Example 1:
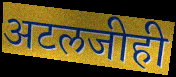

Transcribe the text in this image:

अटलजीही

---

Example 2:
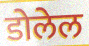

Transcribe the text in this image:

डोलेल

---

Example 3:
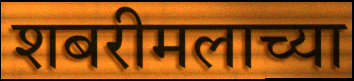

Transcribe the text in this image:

शबरीमलाच्या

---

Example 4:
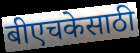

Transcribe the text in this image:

बीएचकेसाठी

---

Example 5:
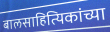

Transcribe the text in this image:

बालसाहित्यिकांच्या